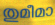
തുമീമാ